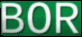
BOR